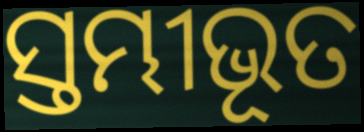
ସ୍ତମ୍ଭୀଭୂତ